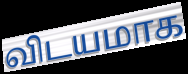
விடயமாக